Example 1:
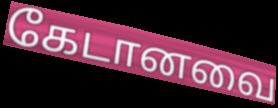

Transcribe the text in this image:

கேடானவை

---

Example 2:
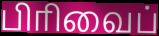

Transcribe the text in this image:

பிரிவைப்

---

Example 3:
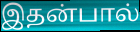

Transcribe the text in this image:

இதன்பால்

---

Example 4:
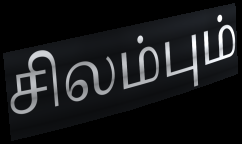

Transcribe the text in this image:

சிலம்பும்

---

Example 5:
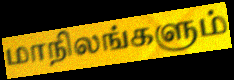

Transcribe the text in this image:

மாநிலங்களும்